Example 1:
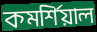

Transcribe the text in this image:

কমর্শিয়াল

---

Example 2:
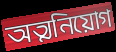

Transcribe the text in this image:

অত্মনিয়োগ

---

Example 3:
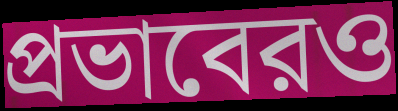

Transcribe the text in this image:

প্রভাবেরও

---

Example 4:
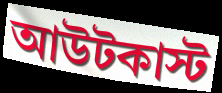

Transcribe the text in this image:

আউটকাস্ট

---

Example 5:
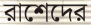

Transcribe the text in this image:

রাশেদের